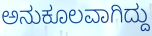
ಅನುಕೂಲವಾಗಿದ್ದು